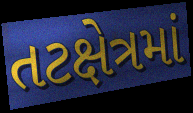
તટક્ષેત્રમાં